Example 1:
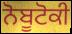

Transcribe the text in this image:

ਨੋਬੂਟੋਕੀ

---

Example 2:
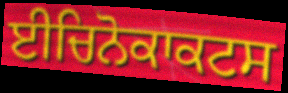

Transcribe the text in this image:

ਈਚਿਨੋਕਾਕਟਸ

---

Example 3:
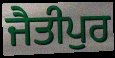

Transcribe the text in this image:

ਜੈਤੀਪੁਰ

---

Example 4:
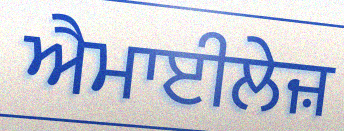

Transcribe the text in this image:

ਐਮਾਈਲੇਜ਼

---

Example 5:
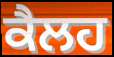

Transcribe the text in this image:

ਕੈਲਹ